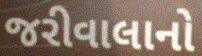
જરીવાલાનો